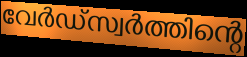
വേർഡ്സ്വർത്തിന്റെ